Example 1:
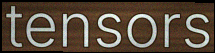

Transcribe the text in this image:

tensors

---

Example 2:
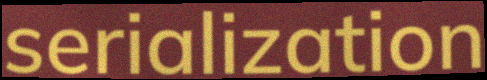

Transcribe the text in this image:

serialization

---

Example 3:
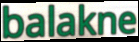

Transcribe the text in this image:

balakne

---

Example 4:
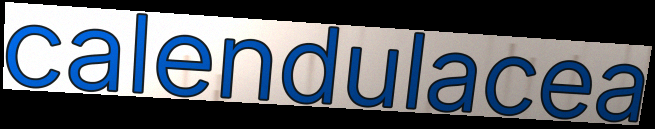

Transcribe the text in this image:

calendulacea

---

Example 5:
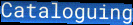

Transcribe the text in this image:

Cataloguing